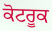
ਕੋਟਰੂਕ